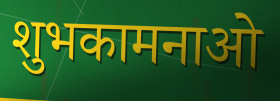
शुभकामनाओ